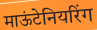
माऊंटेनियरिंग